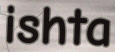
ishta